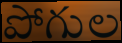
పోగుల